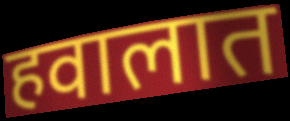
हवालात